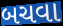
બચવા